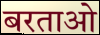
बरताओ